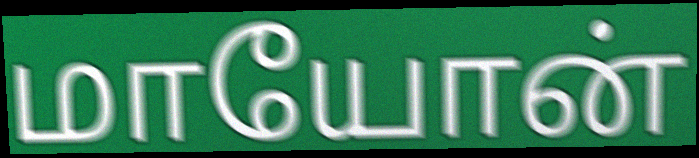
மாயோன்